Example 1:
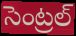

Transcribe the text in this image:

సెంట్రల్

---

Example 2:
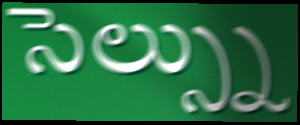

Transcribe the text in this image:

సెల్స్ను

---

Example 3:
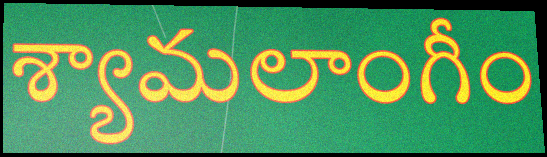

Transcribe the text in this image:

శ్యామలాంగీం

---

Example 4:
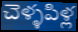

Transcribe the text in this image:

చెళ్ళపిళ్ల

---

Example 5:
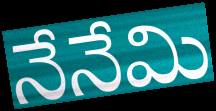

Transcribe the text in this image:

నేనేమి